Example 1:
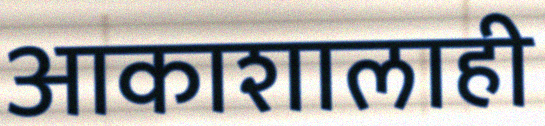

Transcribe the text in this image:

आकाशालाही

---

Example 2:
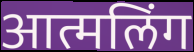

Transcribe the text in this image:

आत्मलिंग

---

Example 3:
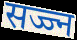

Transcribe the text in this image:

सज्ज्न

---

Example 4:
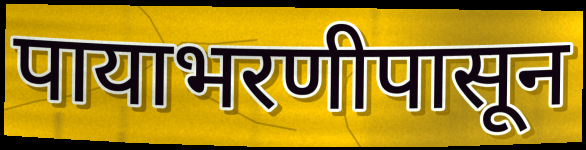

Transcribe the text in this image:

पायाभरणीपासून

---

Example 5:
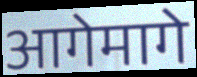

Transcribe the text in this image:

आगेमागे